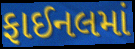
ફાઈનલમાં